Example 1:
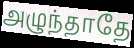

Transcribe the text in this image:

அழுந்தாதே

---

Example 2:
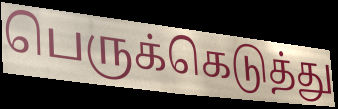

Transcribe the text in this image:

பெருக்கெடுத்து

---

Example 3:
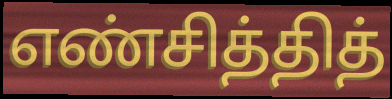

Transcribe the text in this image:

எண்சித்தித்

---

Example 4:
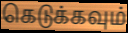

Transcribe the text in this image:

கெடுக்கவும்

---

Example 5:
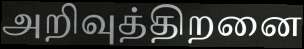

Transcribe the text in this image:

அறிவுத்திறனை